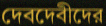
দেবদেবীদের